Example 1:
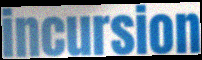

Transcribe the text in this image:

incursion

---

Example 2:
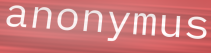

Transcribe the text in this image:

anonymus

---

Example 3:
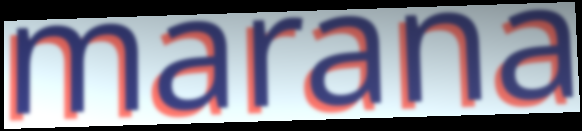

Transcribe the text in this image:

marana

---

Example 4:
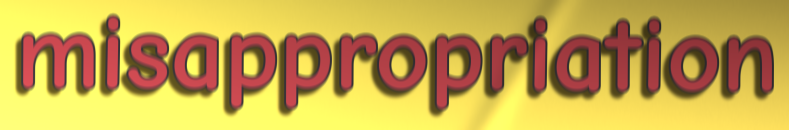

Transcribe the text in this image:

misappropriation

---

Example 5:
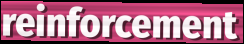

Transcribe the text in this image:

reinforcement